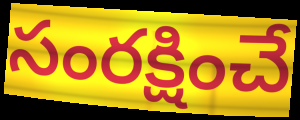
సంరక్షించే